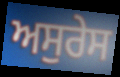
ਅਸੁਰੇਸ